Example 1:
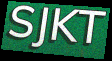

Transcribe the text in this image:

SJKT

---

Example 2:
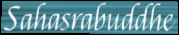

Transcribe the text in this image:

Sahasrabuddhe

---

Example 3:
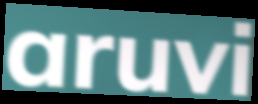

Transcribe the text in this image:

aruvi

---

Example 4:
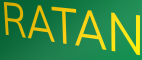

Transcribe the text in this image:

RATAN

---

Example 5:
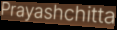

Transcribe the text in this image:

Prayashchitta